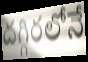
దగ్గిరలోనే